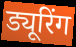
ड्यूरिंग